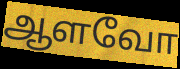
ஆளவோ